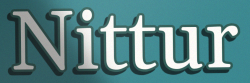
Nittur